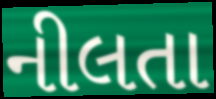
નીલતા